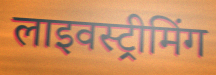
लाइवस्ट्रीमिंग